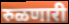
रुळणारी